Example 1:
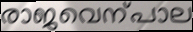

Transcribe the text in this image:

രാജവെന്പാല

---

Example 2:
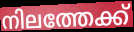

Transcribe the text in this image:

നിലത്തേക്ക്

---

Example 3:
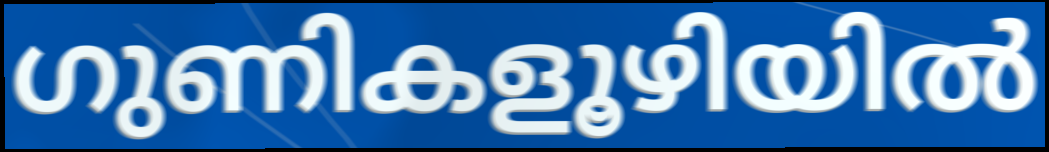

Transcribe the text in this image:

ഗുണികളൂഴിയിൽ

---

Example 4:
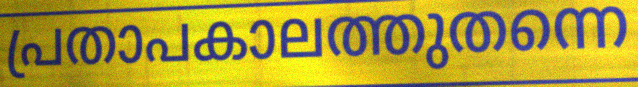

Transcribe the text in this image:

പ്രതാപകാലത്തുതന്നെ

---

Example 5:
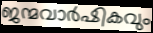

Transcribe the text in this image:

ജന്മവാർഷികവും